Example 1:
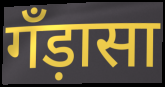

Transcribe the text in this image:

गँड़ासा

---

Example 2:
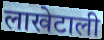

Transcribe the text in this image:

लाखेटाली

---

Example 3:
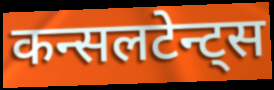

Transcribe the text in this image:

कन्सलटेन्ट्स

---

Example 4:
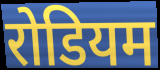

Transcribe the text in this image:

रोडियम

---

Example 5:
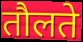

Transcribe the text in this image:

तौलते